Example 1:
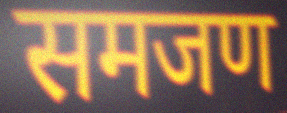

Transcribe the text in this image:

समजण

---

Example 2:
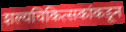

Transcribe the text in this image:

शल्यचिकित्सकांकडून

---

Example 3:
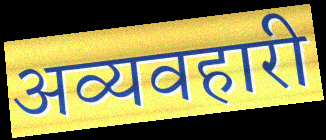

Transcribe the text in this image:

अव्यवहारी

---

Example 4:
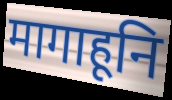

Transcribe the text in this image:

मागाहूनि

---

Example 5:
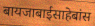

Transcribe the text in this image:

बायजाबाईसाहेबांस